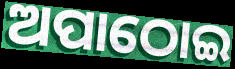
ଅପାଠୋଇ